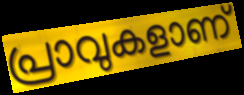
പ്രാവുകളാണ്